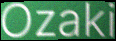
Ozaki